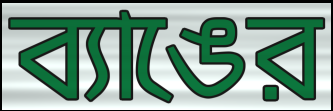
ব্যাঙের